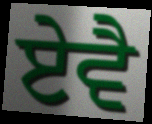
ਏਵੈ